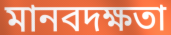
মানবদক্ষতা